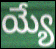
య్యే